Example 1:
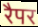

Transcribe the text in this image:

रैपर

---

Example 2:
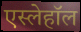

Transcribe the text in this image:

एस्लेहॉल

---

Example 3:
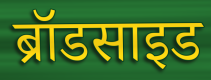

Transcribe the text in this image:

ब्रॉडसाइड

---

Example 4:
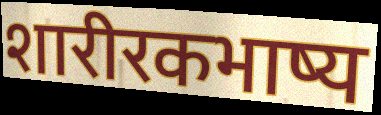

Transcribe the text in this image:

शारीरकभाष्य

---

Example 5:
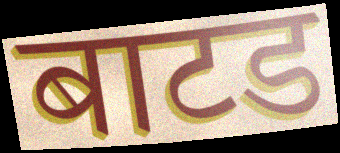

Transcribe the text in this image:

बाटड